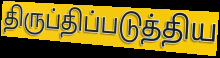
திருப்திப்படுத்திய